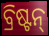
ବ୍ରିଷ୍ଟନ୍